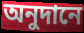
অনুদানে